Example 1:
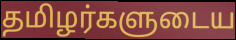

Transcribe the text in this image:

தமிழர்களுடைய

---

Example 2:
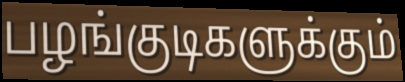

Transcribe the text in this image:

பழங்குடிகளுக்கும்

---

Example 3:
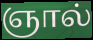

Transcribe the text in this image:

ஞால்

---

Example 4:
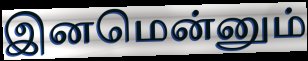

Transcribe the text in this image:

இனமென்னும்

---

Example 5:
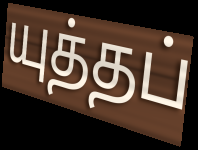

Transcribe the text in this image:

யுத்தப்